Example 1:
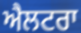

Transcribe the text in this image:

ਐਲਟਰਾ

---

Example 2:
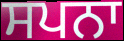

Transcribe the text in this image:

ਸਪਨਾ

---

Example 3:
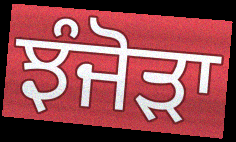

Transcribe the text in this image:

ਝੰਜੋੜਾ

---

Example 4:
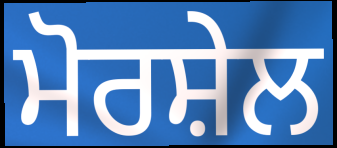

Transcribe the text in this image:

ਮੋਰਸ਼ੇਲ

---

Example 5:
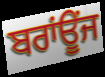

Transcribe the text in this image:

ਬਰਾਂਊਂਜ